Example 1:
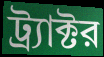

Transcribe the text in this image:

ট্র্যাক্টর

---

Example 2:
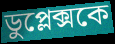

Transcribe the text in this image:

ডুপ্লেক্সকে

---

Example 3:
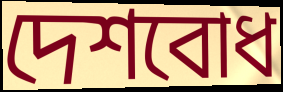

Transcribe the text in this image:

দেশবোধ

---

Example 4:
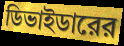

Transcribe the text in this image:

ডিভাইডারের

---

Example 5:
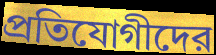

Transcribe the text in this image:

প্রতিযোগীদের